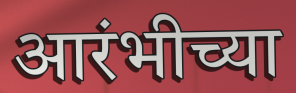
आरंभीच्या